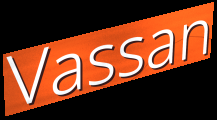
Vassan